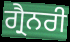
ਗ੍ਰੈਨਰੀ